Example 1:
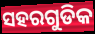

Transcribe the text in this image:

ସହରଗୁଡିକ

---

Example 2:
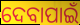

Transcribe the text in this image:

ଦେବାପାଇଁ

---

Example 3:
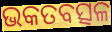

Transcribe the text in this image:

ଭକତବତ୍ସଳ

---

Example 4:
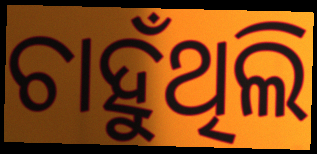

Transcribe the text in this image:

ଚାହୁଁଥିଲି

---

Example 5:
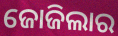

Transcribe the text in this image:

ଜୋଜିଲାର